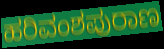
ಹರಿವಂಶಪುರಾಣ